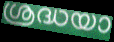
ശ്രദ്ധയാ